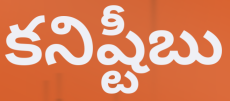
కనిష్టీబు